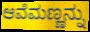
ಆವೆಮಣ್ಣನ್ನು